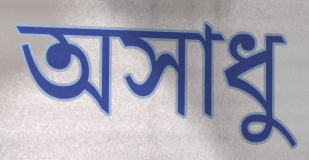
অসাধু